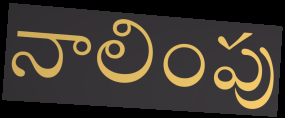
నాలింపు